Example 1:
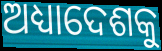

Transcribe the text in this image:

ଅଧ୍ୟାଦେଶକୁ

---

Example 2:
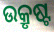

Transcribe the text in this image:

ଉକ୍ରୃଷ୍ଟ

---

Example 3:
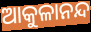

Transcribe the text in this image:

ଆକୁଳାନନ୍ଦ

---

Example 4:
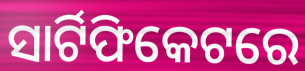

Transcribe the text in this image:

ସାର୍ଟିଫିକେଟରେ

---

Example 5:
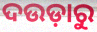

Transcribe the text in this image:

ଦଉଡ଼ାରୁ